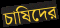
চাষিদের